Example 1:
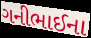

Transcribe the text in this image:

ગનીભાઈના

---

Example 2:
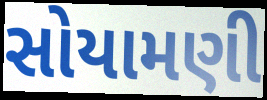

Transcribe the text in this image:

સોયામણી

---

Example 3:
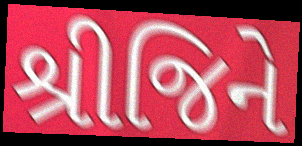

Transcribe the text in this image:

શ્રીજિને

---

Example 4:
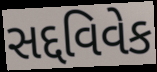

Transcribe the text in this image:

સદ્દવિવેક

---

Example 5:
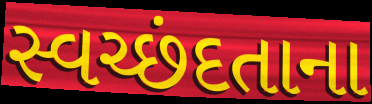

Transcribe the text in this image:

સ્વચ્છંદતાના